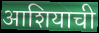
आशियाची